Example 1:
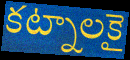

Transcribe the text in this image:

కట్నాలకై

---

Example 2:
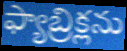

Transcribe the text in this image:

ఫ్యాబ్రిక్లను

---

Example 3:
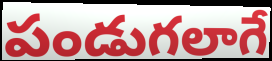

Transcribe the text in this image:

పండుగలాగే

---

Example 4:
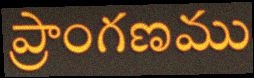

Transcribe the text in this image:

ప్రాంగణము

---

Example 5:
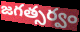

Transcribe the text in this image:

జగత్సర్వం